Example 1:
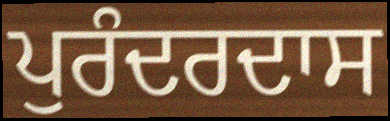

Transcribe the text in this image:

ਪੁਰੰਦਰਦਾਸ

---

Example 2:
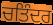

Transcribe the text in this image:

ਚਤਿੰਦਰ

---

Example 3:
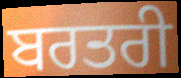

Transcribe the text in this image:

ਬਰਤਰੀ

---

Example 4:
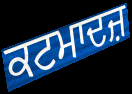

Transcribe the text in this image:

ਕਟਮਾਦਜ਼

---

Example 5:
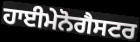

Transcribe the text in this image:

ਹਾਈਮੇਨੋਗੈਸਟਰ